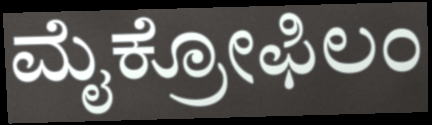
ಮೈಕ್ರೋಫಿಲಂ